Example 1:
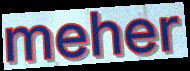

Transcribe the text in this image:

meher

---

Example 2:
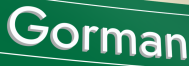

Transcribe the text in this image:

Gorman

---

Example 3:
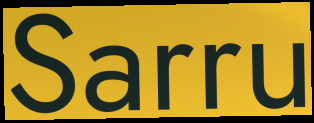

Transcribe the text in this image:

Sarru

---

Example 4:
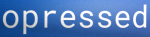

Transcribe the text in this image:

opressed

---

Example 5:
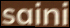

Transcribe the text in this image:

saini